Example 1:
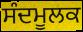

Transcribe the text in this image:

ਸੰਦਮੂਲਕ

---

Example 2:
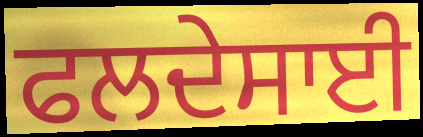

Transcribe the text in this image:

ਫਲਦੇਸਾਈ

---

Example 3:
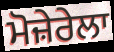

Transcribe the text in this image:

ਮੋਜ਼ੇਰੇਲਾ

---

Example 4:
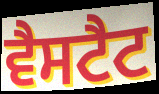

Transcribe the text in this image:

ਵੈਸਟੈਟ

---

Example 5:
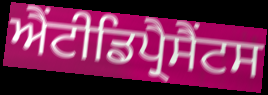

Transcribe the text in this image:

ਐਂਟੀਡਿਪ੍ਰੈਸੈਂਟਸ